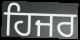
ਹਿਜਰ